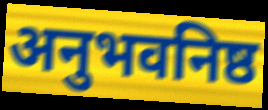
अनुभवनिष्ठ